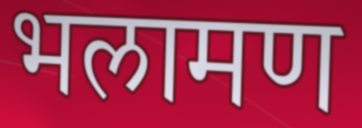
भलामण